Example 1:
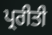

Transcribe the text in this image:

ਪ੍ਰਰੀਤੀ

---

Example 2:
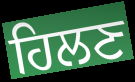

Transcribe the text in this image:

ਹਿਲਣ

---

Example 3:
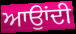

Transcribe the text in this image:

ਆਉਾਂਦੀ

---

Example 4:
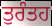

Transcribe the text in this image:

ਤੁਰੰਤਹ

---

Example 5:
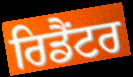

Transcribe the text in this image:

ਰਿਡੈਂਟਰ